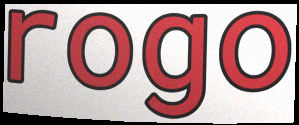
rogo